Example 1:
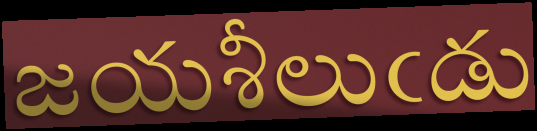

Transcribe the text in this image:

జయశీలుఁడు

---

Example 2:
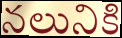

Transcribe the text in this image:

నలునికి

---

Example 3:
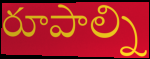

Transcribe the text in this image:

రూపాల్ని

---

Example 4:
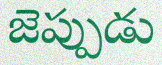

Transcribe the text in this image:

జెప్పుడు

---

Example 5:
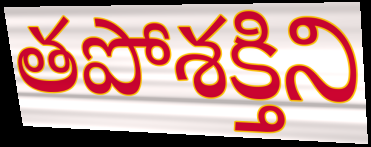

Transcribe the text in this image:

తపోశక్తిని